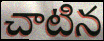
చాటిన